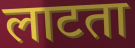
लाटता